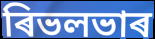
ৰিভলভাৰ